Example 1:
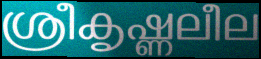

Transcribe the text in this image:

ശ്രീകൃഷ്ണലീല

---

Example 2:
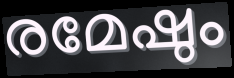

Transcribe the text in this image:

രമേഷും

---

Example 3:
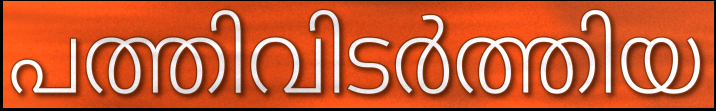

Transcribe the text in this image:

പത്തിവിടർത്തിയ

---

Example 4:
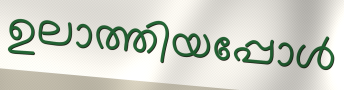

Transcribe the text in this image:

ഉലാത്തിയപ്പോൾ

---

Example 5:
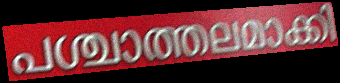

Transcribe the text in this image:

പശ്ചാത്തലമാക്കി